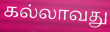
கல்லாவது